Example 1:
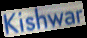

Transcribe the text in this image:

Kishwar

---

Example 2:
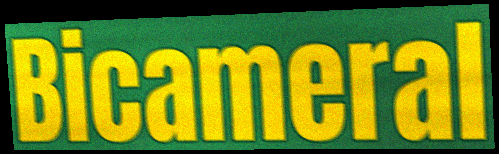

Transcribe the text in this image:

Bicameral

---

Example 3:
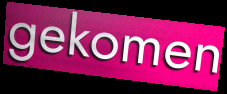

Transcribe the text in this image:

gekomen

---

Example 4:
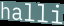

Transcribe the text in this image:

halli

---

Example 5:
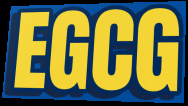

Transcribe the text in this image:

EGCG